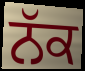
ਨੱਕ